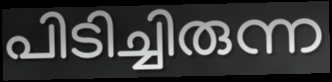
പിടിച്ചിരുന്ന